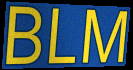
BLM